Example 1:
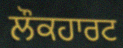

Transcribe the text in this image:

ਲੌਕਹਾਰਟ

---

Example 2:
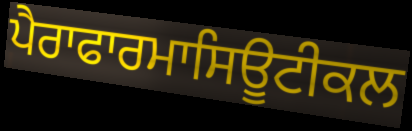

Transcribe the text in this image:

ਪੈਰਾਫਾਰਮਾਸਿਊਟੀਕਲ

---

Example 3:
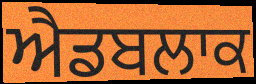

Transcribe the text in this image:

ਐਡਬਲਾਕ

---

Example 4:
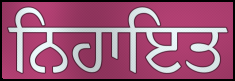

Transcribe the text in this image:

ਨਿਹਾਇਤ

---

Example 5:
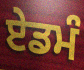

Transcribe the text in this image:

ਏਡਮੰ